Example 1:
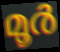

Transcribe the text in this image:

മൂർ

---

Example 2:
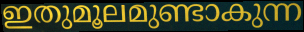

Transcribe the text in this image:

ഇതുമൂലമുണ്ടാകുന്ന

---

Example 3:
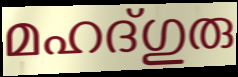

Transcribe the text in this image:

മഹദ്ഗുരു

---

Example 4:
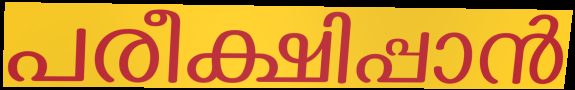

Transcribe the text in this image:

പരീക്ഷിപ്പാൻ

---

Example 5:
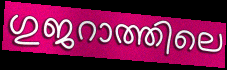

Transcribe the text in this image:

ഗുജറാത്തിലെ